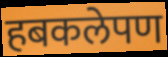
हबकलेपण